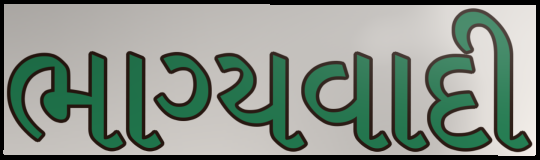
ભાગ્યવાદી